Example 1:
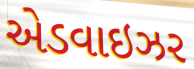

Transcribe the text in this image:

એડવાઇઝર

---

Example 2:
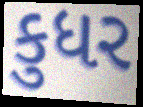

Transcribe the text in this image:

કુધર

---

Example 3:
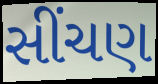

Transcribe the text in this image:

સીંચણ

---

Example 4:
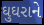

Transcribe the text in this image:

ઘુઘરાને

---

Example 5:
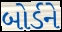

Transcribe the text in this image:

બોર્ડને